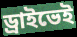
ড্রাইভেই